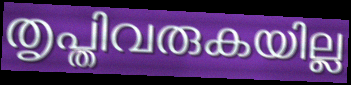
തൃപ്തിവരുകയില്ല